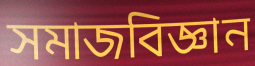
সমাজবিজ্ঞান